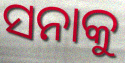
ସନାକୁ